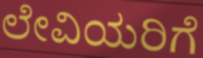
ಲೇವಿಯರಿಗೆ